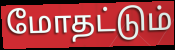
மோதட்டும்